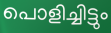
പൊളിച്ചിട്ടും